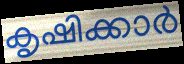
കൃഷിക്കാർ